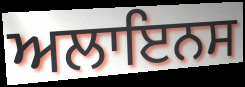
ਅਲਾਇਨਸ